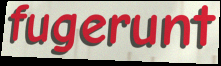
fugerunt